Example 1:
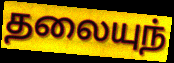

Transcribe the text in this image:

தலையுந்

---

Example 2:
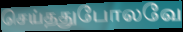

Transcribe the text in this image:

செய்ததுபோலவே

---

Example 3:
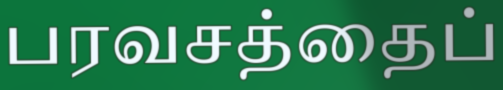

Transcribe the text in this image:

பரவசத்தைப்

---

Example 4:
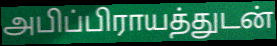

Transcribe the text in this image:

அபிப்பிராயத்துடன்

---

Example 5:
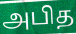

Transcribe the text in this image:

அபித